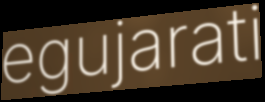
egujarati